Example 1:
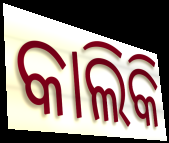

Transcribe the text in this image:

କାଲିକି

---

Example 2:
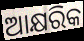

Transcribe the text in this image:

ଆକ୍ଷରିକ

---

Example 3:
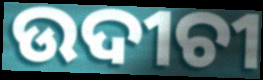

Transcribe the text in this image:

ଉଦୀଚୀ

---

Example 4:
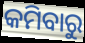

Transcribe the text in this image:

କମିବାରୁ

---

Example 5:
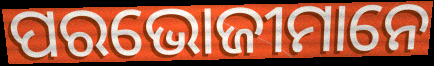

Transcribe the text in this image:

ପରଭୋଜୀମାନେ